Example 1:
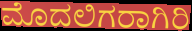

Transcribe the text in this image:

ಮೊದಲಿಗರಾಗಿರಿ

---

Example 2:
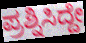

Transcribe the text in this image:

ಪ್ರಶ್ನಿಸಿದ್ದೇ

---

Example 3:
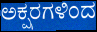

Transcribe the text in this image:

ಅಕ್ಷರಗಳಿಂದ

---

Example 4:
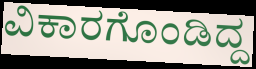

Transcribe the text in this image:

ವಿಕಾರಗೊಂಡಿದ್ದ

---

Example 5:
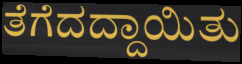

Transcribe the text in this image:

ತೆಗೆದದ್ದಾಯಿತು